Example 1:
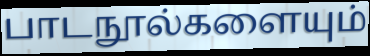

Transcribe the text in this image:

பாடநூல்களையும்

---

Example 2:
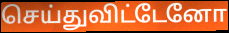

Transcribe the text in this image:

செய்துவிட்டேனோ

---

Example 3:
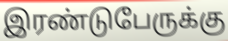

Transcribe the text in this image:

இரண்டுபேருக்கு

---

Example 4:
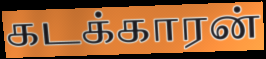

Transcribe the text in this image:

கடக்காரன்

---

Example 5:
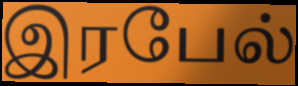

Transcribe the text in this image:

இரபேல்